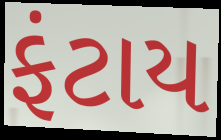
ફંટાય